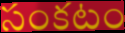
సంకటం